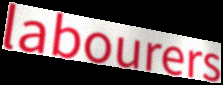
labourers